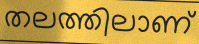
തലത്തിലാണ്